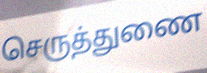
செருத்துணை